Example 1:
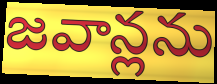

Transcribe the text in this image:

జవాన్లను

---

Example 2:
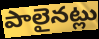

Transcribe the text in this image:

పాలైనట్లు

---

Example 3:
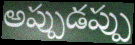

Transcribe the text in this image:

అప్పుడప్పు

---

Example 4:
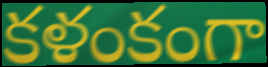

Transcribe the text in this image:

కళంకంగా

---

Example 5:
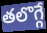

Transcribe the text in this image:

తలొగ్గే